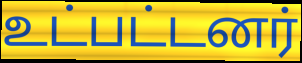
உட்பட்டனர்